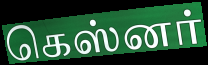
கெஸ்னர்